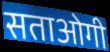
सताओगी